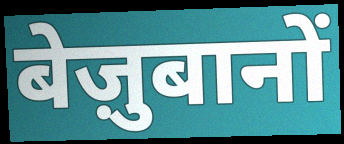
बेज़ुबानों